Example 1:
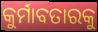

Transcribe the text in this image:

କୁର୍ମାବତାରକୁ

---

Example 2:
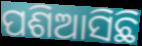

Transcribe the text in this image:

ପଶିଆସିଛି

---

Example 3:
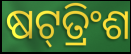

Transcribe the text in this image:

ଷଟ୍‌ତ୍ରିଂଶ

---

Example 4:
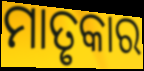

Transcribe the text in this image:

ମାତୃକାର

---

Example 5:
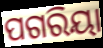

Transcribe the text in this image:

ପଗରିୟା